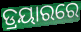
ଡ୍ରୟାରରେ